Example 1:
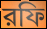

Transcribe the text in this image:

রফি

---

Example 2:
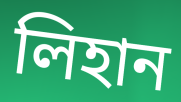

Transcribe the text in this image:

লিহান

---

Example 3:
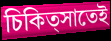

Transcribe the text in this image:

চিকিত্সাতেই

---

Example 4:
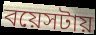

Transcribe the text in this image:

বয়েসটায়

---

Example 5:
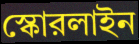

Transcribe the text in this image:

স্কোরলাইন